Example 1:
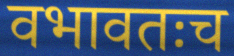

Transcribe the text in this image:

वभावतःच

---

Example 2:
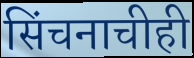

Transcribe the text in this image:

सिंचनाचीही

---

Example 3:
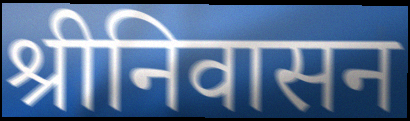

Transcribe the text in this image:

श्रीनिवासन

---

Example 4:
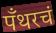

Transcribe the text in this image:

पँथरचं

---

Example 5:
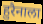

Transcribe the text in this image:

हुरैनाला